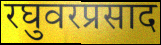
रघुवरप्रसाद